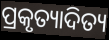
ପ୍ରକୃତ୍ୟାଦିତ୍ୟ